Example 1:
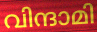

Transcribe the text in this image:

വിന്ദാമി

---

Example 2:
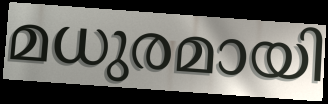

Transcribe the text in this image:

മധുരമായി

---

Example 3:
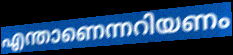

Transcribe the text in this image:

എന്താണെന്നറിയണം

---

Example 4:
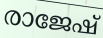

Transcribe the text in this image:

രാജേഷ്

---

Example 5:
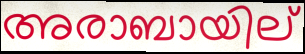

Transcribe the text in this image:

അരാബായില്